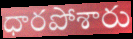
ధారపోశారు